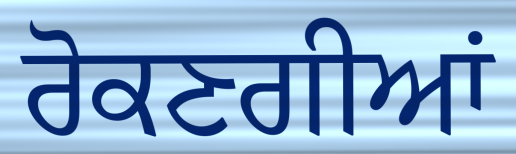
ਰੋਕਣਗੀਆਂ